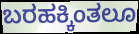
ಬರಹಕ್ಕಿಂತಲೂ